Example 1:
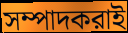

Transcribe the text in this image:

সম্পাদকরাই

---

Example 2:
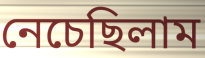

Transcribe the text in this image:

নেচেছিলাম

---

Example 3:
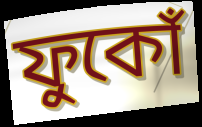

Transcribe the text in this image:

ফুকোঁ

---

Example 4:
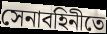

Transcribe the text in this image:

সেনাবহিনীতে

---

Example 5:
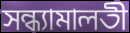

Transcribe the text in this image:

সন্ধ্যামালতী